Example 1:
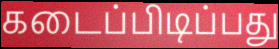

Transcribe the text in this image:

கடைப்பிடிப்பது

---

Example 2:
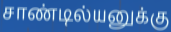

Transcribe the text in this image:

சாண்டில்யனுக்கு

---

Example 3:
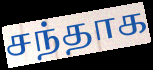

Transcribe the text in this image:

சந்தாக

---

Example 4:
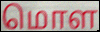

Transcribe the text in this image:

மொள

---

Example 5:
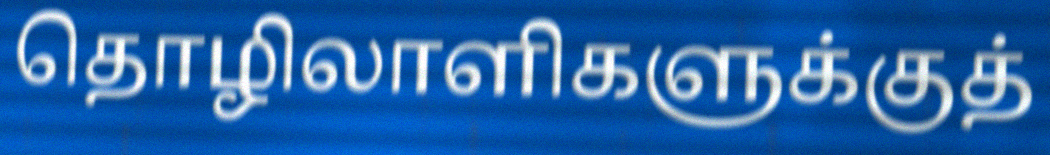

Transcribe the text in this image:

தொழிலாளிகளுக்குத்